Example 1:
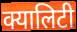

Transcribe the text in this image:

क्यालिटी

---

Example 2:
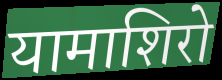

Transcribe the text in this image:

यामाशिरो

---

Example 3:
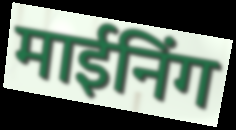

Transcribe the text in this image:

माईनिंग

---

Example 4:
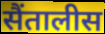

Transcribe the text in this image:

सैंतालीस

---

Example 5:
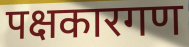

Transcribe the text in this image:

पक्षकारगण